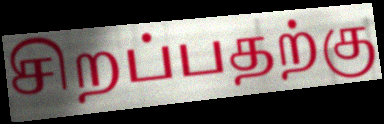
சிறப்பதற்கு